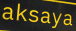
aksaya